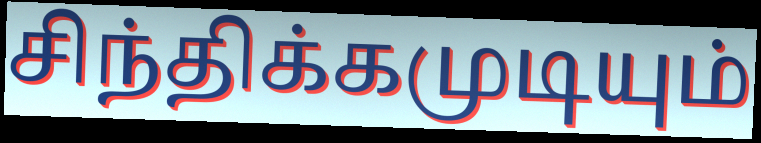
சிந்திக்கமுடியும்